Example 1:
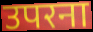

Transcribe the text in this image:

उपरना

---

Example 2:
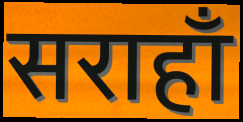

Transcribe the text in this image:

सराहाँ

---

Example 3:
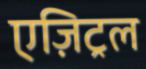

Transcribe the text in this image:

एज़िट्रल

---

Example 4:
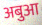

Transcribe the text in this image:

अबुआ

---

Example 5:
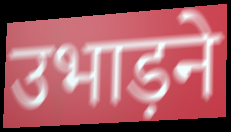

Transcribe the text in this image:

उभाड़ने